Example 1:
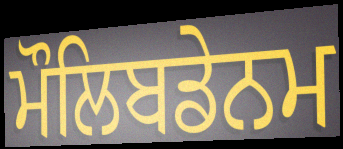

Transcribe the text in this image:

ਮੌਲਿਬਡੇਨਮ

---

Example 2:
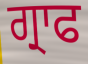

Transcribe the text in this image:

ਗ੍ਰਾਫ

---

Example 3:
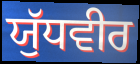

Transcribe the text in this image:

ਯੁੱਧਵੀਰ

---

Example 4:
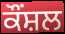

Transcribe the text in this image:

ਕੌਂਸ਼ਲ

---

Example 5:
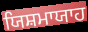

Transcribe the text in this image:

ਯਿਸ਼ਮਾਯਾਹ